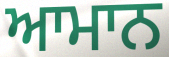
ਆਮਾਨ